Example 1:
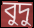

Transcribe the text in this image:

বুদু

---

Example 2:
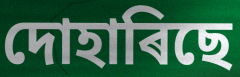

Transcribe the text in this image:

দোহাৰিছে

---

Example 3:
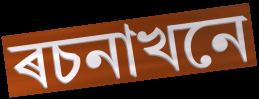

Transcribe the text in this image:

ৰচনাখনে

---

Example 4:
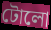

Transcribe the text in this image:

টোলো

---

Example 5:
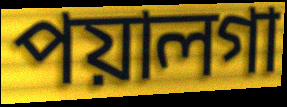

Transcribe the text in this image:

পয়ালগা